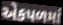
એકપળમાં